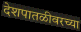
देशपातळीवरच्या